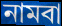
নামবা